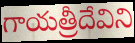
గాయత్రీదేవిని